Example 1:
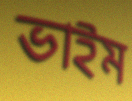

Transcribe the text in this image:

ভাইম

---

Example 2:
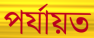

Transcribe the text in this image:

পৰ্যায়ত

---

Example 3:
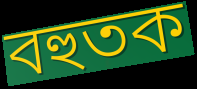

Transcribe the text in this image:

বহুতক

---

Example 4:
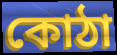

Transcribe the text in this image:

কোঠা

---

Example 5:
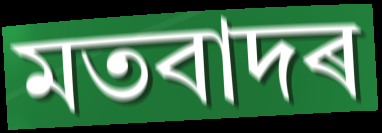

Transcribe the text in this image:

মতবাদৰ